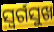
ସ୍ୱର୍ଗସୁଖ